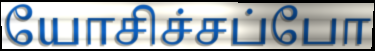
யோசிச்சப்போ